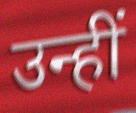
उन्हीं